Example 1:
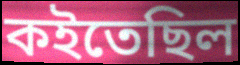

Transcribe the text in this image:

কইতেছিল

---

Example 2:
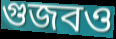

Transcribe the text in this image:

গুজবও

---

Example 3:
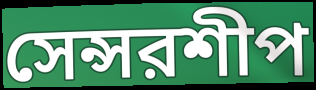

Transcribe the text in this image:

সেন্সরশীপ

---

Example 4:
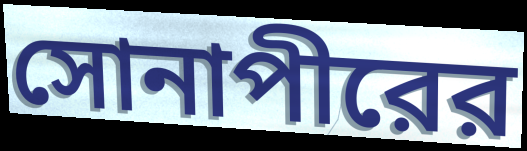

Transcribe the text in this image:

সোনাপীরের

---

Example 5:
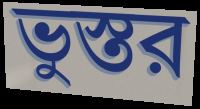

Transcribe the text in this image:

ভুস্তর